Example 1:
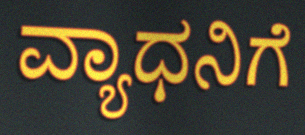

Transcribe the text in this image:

ವ್ಯಾಧನಿಗೆ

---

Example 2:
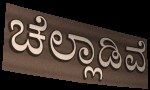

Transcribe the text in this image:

ಚೆಲ್ಲಾಡಿವೆ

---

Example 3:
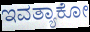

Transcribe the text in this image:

ಇವತ್ಯಾಕೋ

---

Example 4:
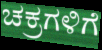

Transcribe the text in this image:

ಚಕ್ರಗಳಿಗೆ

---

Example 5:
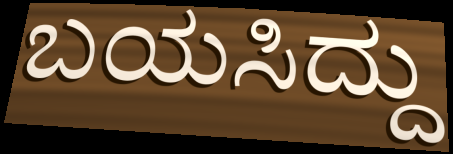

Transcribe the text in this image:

ಬಯಸಿದ್ದು